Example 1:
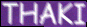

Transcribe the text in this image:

THAKI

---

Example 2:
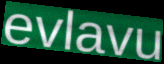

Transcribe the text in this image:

evlavu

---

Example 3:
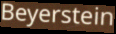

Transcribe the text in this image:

Beyerstein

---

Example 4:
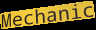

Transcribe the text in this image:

Mechanic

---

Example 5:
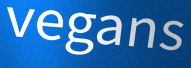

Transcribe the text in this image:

vegans